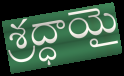
శ్రద్ధాయై